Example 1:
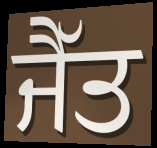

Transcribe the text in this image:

ਜੈੱਤ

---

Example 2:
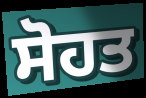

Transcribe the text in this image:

ਸੋਹਤ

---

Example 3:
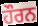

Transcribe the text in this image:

ਹੌਰਨ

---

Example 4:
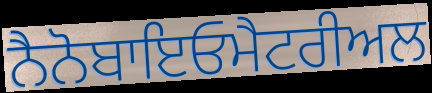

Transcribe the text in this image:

ਨੈਨੋਬਾਇਓਮੈਟਰੀਅਲ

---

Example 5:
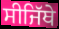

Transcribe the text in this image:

ਸੀਜਿੱਥੇ